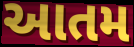
આતમ